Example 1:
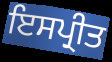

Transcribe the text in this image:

ਇਸਪ੍ਰੀਤ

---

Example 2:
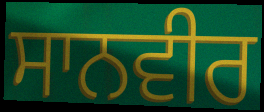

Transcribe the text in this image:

ਸਾਨਵੀਰ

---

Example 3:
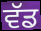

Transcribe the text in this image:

ਵੱਡ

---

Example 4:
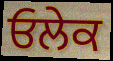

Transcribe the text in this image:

ਓਲੇਕ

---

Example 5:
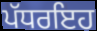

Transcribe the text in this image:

ਪੱਧਰਇਹ